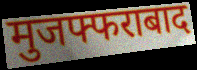
मुजफ्फराबाद